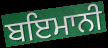
ਬਇਮਾਨੀ